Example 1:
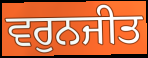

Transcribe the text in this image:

ਵਰੁਨਜੀਤ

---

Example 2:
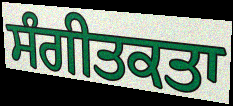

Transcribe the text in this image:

ਸੰਗੀਤਕਤਾ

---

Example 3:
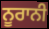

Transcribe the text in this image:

ਨੂਰਾਨੀ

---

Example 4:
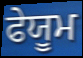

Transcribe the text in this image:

ਫੇਯੂਮ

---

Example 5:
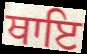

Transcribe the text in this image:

ਥਾਇ